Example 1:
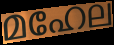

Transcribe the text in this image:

മഹേല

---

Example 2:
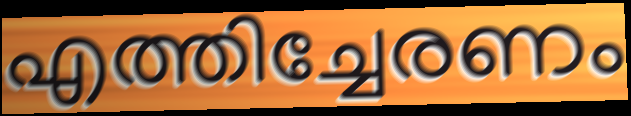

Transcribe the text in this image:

എത്തിച്ചേരണം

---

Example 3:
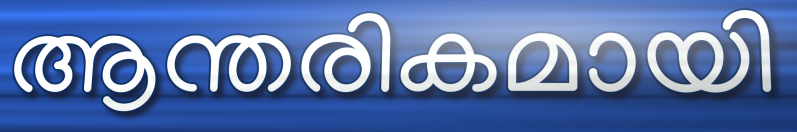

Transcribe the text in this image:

ആന്തരികമായി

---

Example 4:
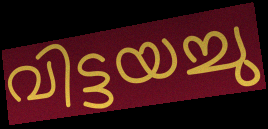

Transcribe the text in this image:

വിട്ടയച്ചു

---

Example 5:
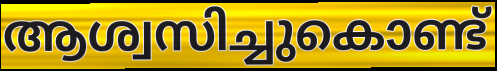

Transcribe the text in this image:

ആശ്വസിച്ചുകൊണ്ട്